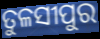
ତୁଳସୀପୁର